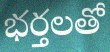
భర్తలతో